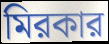
মিরকার